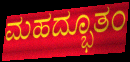
ಮಹದ್ಭೂತಂ